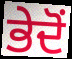
ਭੇਦੋਂ